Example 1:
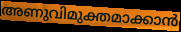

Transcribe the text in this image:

അണുവിമുക്തമാക്കാൻ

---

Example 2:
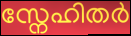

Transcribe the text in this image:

സ്നേഹിതർ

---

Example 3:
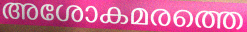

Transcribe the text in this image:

അശോകമരത്തെ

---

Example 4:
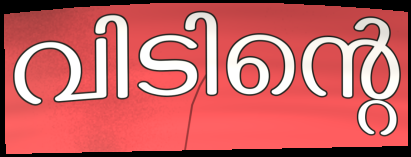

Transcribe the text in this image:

വിടിന്റെ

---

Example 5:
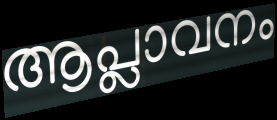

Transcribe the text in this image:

ആപ്ലാവനം